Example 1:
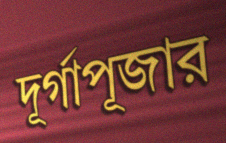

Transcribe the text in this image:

দূর্গাপূজার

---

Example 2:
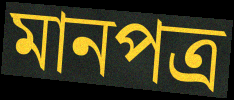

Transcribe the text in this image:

মানপত্র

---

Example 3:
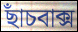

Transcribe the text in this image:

ছাঁচবাক্স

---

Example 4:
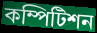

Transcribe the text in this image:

কম্পিটিশন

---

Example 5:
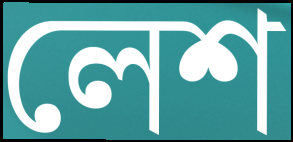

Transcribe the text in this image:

লেশ